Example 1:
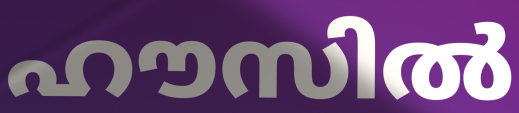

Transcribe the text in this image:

ഹൗസിൽ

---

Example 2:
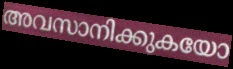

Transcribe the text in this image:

അവസാനിക്കുകയോ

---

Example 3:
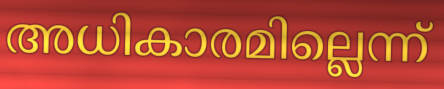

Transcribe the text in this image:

അധികാരമില്ലെന്ന്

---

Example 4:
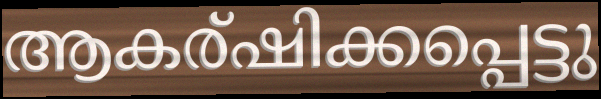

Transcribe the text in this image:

ആകര്ഷിക്കപ്പെട്ടു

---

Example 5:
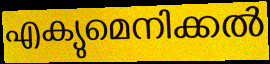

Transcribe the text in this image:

എക്യുമെനിക്കൽ